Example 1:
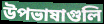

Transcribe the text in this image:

উপভাষাগুলি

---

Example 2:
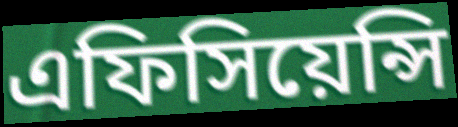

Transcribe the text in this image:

এফিসিয়েন্সি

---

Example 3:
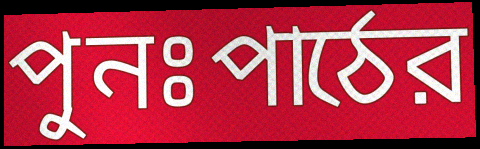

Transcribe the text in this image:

পুনঃপাঠের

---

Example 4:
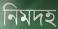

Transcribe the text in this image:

নিমদহ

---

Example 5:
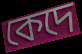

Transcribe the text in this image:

কেদে